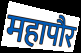
महापौर